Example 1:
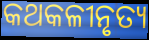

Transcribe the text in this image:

କଥକଳୀନୃତ୍ୟ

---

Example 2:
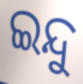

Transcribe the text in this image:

ଇନ୍ଦୁ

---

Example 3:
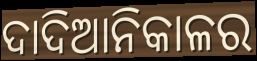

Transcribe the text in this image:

ଦାଦିଆନିକାଳର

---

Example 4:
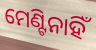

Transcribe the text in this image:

ମେଣ୍ଟିନାହିଁ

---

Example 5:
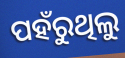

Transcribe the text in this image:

ପହଁରୁଥିଲୁ